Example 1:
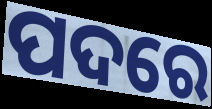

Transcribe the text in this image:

ପଦରେ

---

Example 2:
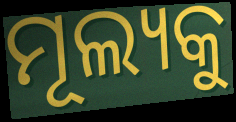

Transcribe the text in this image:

ମୂଲ୍ୟକୁ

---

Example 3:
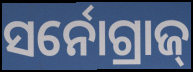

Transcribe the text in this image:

ସର୍ନୋଗ୍ରାଜ୍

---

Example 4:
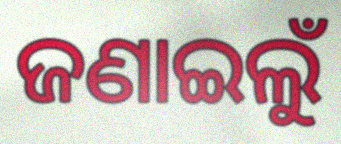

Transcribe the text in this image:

ଜଣାଇଲୁଁ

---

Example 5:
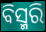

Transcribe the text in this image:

ବିସ୍ମରି